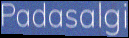
Padasalgi